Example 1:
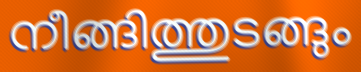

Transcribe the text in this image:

നീങ്ങിത്തുടങ്ങും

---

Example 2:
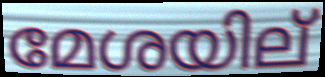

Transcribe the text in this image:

മേശയില്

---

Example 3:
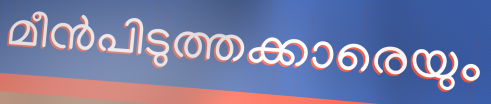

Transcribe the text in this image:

മീൻപിടുത്തക്കാരെയും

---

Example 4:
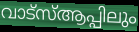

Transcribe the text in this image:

വാട്സ്ആപ്പിലും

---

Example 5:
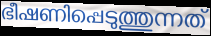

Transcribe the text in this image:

ഭീഷണിപ്പെടുത്തുന്നത്